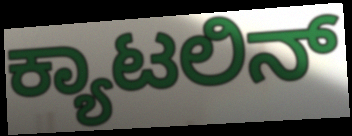
ಕ್ಯಾಟಲಿನ್